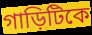
গাড়িটিকে